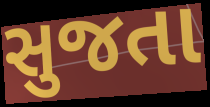
સુજતા